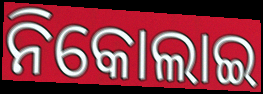
ନିକୋଲାଇ